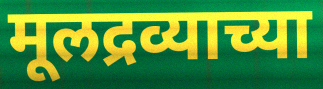
मूलद्रव्याच्या